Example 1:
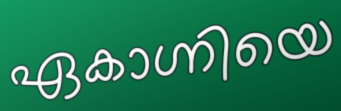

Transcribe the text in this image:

ഏകാഗ്നിയെ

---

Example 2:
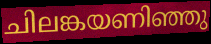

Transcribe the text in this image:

ചിലങ്കയണിഞ്ഞു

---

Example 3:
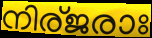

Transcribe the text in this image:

നിര്ജരാഃ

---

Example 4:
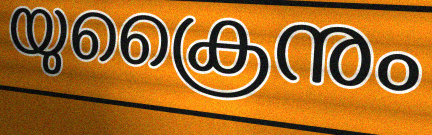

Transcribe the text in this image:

യുക്രൈനും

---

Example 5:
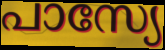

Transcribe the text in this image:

പാസ്യേ